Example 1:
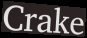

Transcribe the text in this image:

Crake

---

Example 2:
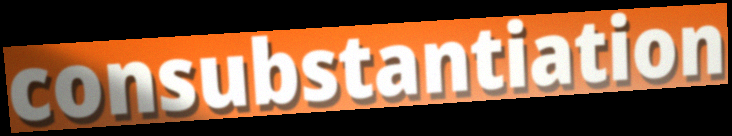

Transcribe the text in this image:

consubstantiation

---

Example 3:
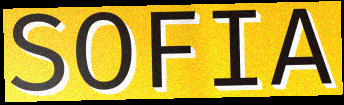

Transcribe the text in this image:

SOFIA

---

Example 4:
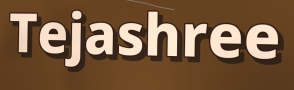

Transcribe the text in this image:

Tejashree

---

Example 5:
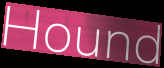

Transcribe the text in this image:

Hound